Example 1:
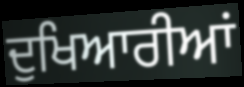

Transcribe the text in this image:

ਦੁਖਿਆਰੀਆਂ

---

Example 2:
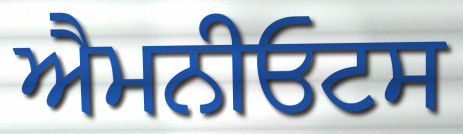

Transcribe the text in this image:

ਐਮਨੀਓਟਸ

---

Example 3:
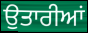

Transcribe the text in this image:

ਉਤਾਰੀਆਂ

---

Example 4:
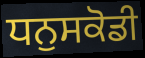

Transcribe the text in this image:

ਧਨੁਸਕੋਡੀ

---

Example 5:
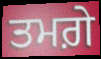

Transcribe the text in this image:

ਤਮਗ਼ੇ